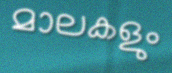
മാലകളും